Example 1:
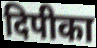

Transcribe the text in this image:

दिपीका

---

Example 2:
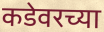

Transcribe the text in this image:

कडेवरच्या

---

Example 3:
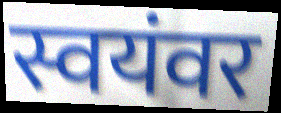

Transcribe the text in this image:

स्वयंवर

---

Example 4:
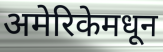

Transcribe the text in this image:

अमेरिकेमधून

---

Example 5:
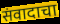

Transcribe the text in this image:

संवादाचा